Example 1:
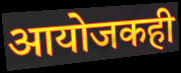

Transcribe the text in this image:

आयोजकही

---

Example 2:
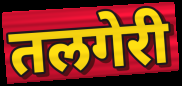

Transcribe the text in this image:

तलगेरी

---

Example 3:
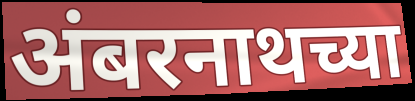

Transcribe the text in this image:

अंबरनाथच्या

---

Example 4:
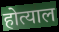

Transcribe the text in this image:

होत्याल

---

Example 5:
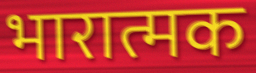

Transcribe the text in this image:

भारात्मक